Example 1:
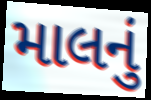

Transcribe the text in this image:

માલનું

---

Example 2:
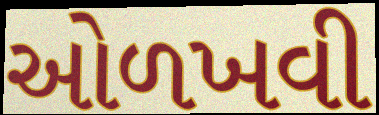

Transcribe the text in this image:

ઓળખવી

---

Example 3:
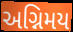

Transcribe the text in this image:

અગ્નિમય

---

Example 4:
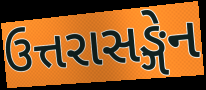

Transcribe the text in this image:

ઉત્તરાસઙ્ગેન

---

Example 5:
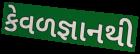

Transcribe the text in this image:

કેવળજ્ઞાનથી